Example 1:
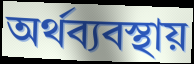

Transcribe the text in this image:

অর্থব্যবস্থায়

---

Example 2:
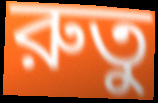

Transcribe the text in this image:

রুতু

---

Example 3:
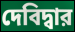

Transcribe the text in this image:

দেবিদ্বার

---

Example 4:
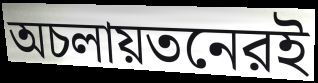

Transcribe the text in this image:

অচলায়তনেরই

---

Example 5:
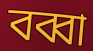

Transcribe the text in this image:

বব্বা